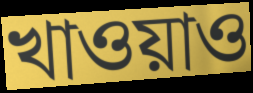
খাওয়াও